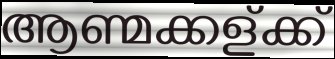
ആണ്മക്കള്ക്ക്